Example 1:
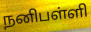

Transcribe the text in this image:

நனிபள்ளி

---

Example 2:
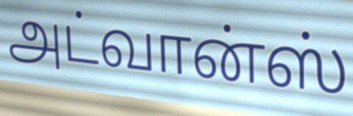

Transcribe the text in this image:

அட்வான்ஸ்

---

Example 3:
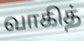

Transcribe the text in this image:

வாகித்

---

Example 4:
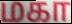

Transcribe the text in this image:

மகா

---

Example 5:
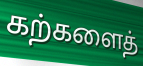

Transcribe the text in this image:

கற்களைத்